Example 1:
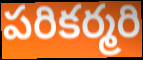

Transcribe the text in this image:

పరికర్మరి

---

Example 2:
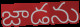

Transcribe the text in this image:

జాడను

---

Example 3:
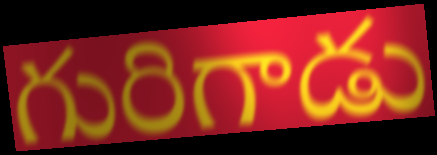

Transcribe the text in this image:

గురిగాడు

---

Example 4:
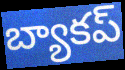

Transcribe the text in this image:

బ్యాకప్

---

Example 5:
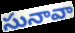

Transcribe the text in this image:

సునావా